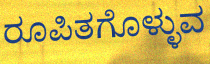
ರೂಪಿತಗೊಳ್ಳುವ